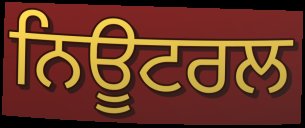
ਨਿਊਟਰਲ